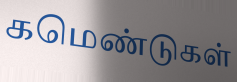
கமெண்டுகள்